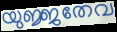
യുജ്ജതേവ